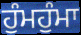
ਹੁੰਮਹੁੰਮਾ